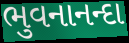
ભુવનાનન્દા